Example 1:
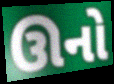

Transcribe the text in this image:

ઊનો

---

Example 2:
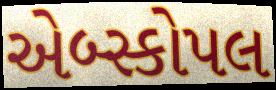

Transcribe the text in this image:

એબ્સ્કોપલ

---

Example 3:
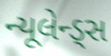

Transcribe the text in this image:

ન્યૂલેન્ડ્સ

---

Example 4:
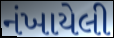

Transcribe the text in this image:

નંખાયેલી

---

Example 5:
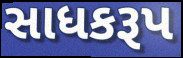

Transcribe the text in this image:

સાધકરૂપ